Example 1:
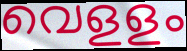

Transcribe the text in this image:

വെളളം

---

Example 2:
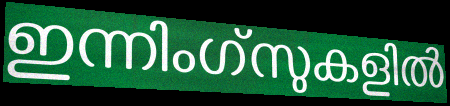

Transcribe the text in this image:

ഇന്നിംഗ്സുകളിൽ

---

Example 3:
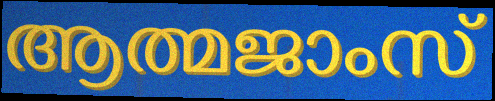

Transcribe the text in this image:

ആത്മജാംസ്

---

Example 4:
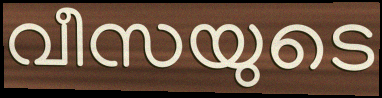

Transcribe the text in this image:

വീസയുടെ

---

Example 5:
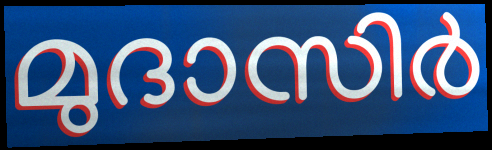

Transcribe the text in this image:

മുദാസിർ